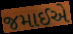
જમાઈએ